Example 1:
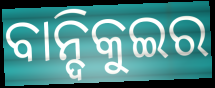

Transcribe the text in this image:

ବାନ୍ଦିକୁଇର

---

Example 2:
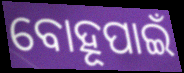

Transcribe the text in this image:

ବୋହୂପାଇଁ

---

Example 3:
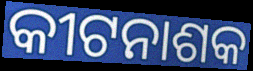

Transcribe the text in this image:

କୀଟନାଶକ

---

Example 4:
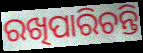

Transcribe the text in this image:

ରଖିପାରିଚନ୍ତି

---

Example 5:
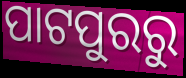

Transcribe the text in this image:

ପାଟପୁରରୁ